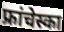
फ्रांचेस्का